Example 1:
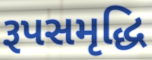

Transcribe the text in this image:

રૂપસમૃદ્ધિ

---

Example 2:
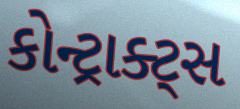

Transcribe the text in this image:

કોન્ટ્રાક્ટ્સ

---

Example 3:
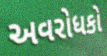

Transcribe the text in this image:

અવરોધકો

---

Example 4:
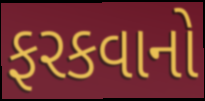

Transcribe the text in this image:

ફરકવાનો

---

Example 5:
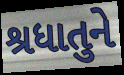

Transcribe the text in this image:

શ્રધાતુને